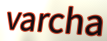
varcha